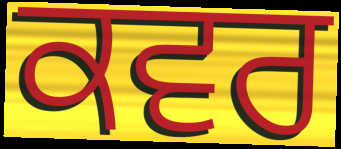
ਕਵਰ